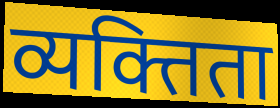
व्यक्तिता